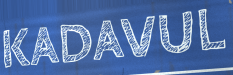
KADAVUL